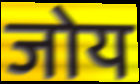
जोय